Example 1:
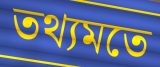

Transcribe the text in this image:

তথ্যমতে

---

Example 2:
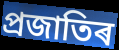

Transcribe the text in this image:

প্ৰজাতিৰ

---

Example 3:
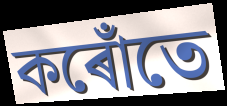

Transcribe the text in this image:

কৰোঁতে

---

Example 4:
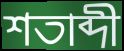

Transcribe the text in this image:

শতাব্দী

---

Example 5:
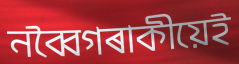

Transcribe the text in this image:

নব্বৈগৰাকীয়েই